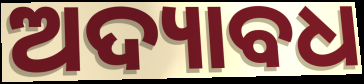
ଅଦ୍ୟାବଧ